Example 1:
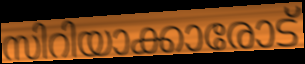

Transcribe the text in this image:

സിറിയാക്കാരോട്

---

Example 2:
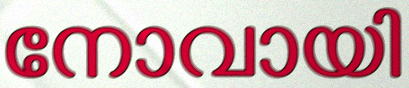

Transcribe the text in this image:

നോവായി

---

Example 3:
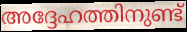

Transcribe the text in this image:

അദ്ദേഹത്തിനുണ്ട്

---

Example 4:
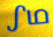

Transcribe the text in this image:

ഽഥ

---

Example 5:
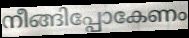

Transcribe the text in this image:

നീങ്ങിപ്പോകേണം